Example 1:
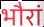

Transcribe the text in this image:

भौरां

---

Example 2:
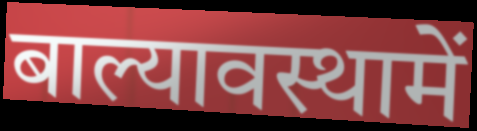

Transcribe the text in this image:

बाल्यावस्थामें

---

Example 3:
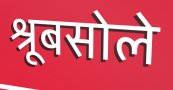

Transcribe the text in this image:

श्रूबसोले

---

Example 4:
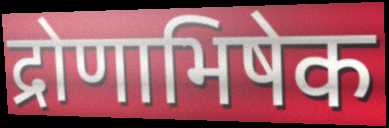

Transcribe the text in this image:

द्रोणाभिषेक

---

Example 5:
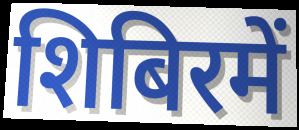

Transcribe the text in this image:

शिबिरमें